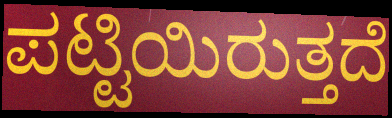
ಪಟ್ಟಿಯಿರುತ್ತದೆ